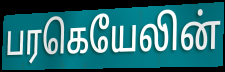
பரகெயேலின்